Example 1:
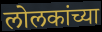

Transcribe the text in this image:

लोलकांच्या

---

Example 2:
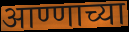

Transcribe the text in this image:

आण्णाच्या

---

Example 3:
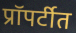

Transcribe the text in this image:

प्रॉपर्टीत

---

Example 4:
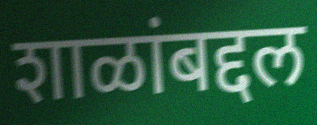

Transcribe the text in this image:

शाळांबद्दल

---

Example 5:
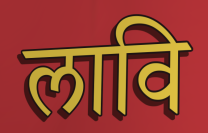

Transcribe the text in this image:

लावि